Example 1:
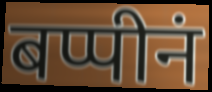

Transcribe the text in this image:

बप्पीनं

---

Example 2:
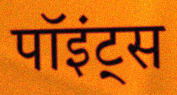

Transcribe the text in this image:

पॉइंट्स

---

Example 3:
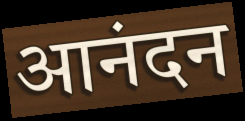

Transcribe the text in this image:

आनंदन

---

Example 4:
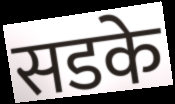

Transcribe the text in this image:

सडके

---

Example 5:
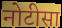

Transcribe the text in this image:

नोटीसा